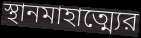
স্থানমাহাত্ম্যের